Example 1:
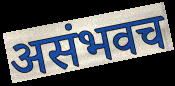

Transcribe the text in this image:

असंभवच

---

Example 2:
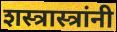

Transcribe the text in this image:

शस्त्रास्त्रांनी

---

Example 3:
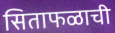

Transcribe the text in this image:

सिताफळाची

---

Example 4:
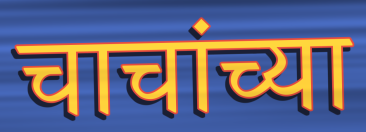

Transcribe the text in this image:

चाचांच्या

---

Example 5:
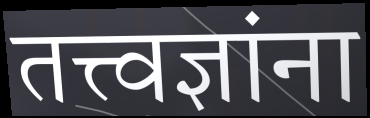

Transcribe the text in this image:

तत्त्वज्ञांना